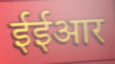
ईईआर